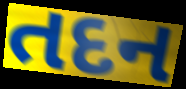
તદન